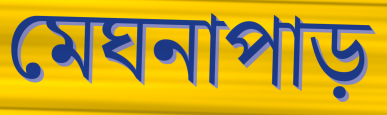
মেঘনাপাড়